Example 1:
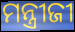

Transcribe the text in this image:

ମନ୍ତ୍ରୀଜୀ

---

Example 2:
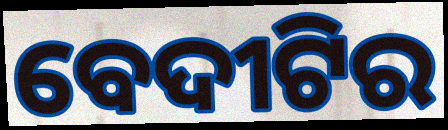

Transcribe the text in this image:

ବେଦୀଟିର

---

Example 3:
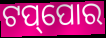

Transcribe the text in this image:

ଟପ୍‌ପୋର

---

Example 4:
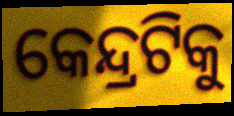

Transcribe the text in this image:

କେନ୍ଦ୍ରଟିକୁ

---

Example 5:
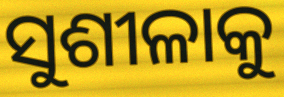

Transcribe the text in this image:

ସୁଶୀଳାକୁ